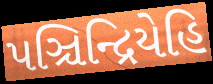
પઞ્ચિન્દ્રિયેહિ